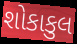
શોકાકુલ